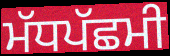
ਮੱਧਪੱਛਮੀ